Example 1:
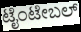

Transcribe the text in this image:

ಟೈಂಟೇಬಲ್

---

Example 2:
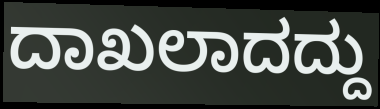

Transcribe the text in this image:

ದಾಖಲಾದದ್ದು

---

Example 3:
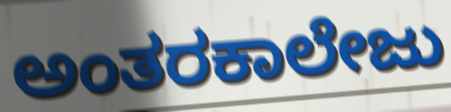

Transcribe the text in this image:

ಅಂತರಕಾಲೇಜು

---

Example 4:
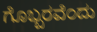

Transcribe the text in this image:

ಗೊಬ್ಬರವೆಂದು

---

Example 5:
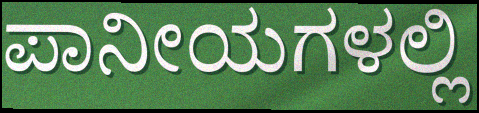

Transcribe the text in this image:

ಪಾನೀಯಗಳಲ್ಲಿ